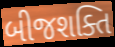
બીજશક્તિ